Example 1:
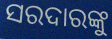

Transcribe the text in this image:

ସରଦାରଙ୍କୁ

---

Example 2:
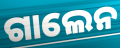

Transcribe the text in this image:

ଗାଲେନ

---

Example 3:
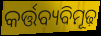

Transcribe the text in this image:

କର୍ତ୍ତବ୍ୟବିମୂଢ଼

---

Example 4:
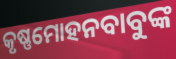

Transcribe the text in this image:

କୃଷ୍ଣମୋହନବାବୁଙ୍କ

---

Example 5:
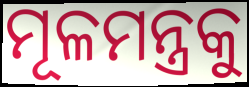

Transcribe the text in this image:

ମୂଳମନ୍ତ୍ରକୁ